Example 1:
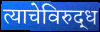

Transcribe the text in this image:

त्याचेविरुद्ध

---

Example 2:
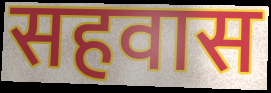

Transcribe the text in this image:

सहवास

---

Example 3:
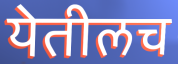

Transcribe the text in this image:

येतीलच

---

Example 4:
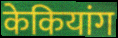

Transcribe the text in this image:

केकियांग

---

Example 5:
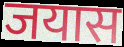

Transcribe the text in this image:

जयास